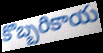
కొబ్బరికాయ